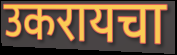
उकरायचा